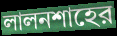
লালনশাহের